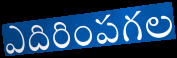
ఎదిరింపగల